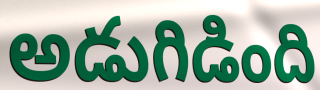
అడుగిడింది